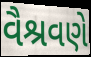
વૈશ્રવણે